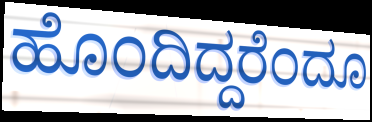
ಹೊಂದಿದ್ದರೆಂದೂ